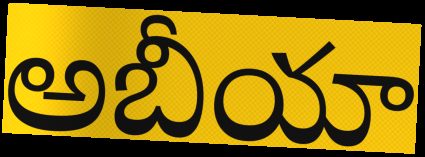
అబీయా